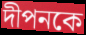
দীপনকে